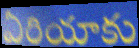
ఏరియాకు